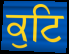
ਕੁਟਿ